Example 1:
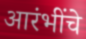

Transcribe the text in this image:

आरंभींचे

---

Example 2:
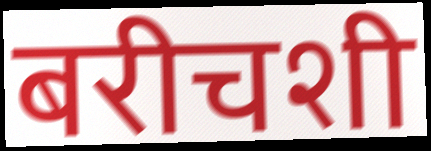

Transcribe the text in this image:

बरीचशी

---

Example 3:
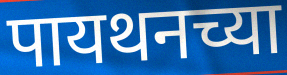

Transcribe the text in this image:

पायथनच्या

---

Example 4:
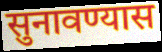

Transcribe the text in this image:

सुनावण्यास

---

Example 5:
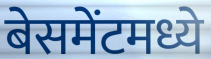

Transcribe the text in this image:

बेसमेंटमध्ये